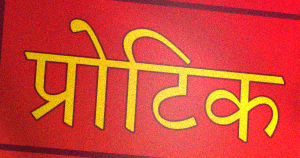
प्रोटिक